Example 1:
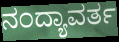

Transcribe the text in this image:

ನಂದ್ಯಾವರ್ತ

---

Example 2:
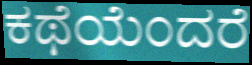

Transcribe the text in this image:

ಕಥೆಯೆಂದರೆ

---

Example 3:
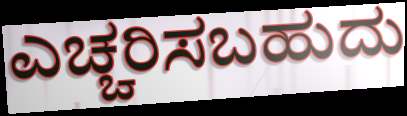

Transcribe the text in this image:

ಎಚ್ಚರಿಸಬಹುದು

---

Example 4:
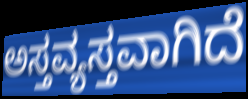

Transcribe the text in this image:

ಅಸ್ತವ್ಯಸ್ತವಾಗಿದೆ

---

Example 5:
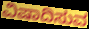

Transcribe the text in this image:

ವಿಷಾದಿಸುವ